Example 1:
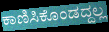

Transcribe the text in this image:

ಕಾಣಿಸಿಕೊಂಡದ್ದಲ್ಲ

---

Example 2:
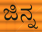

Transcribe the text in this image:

ಜಿನ್ನ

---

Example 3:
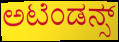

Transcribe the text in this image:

ಅಟೆಂಡನ್ಸ್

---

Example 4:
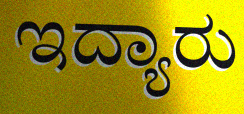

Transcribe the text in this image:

ಇದ್ಯಾರು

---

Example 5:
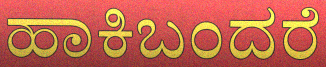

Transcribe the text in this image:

ಹಾಕಿಬಂದರೆ